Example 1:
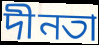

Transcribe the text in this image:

দীনতা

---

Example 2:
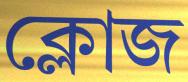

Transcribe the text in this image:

ক্লোজ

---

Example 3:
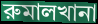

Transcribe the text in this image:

রুমালখানা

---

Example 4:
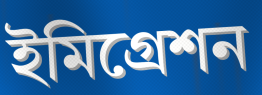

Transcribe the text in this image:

ইমিগ্রেশন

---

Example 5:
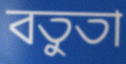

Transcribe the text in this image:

বতুতা